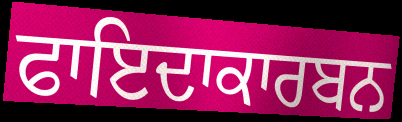
ਫਾਇਦਾਕਾਰਬਨ